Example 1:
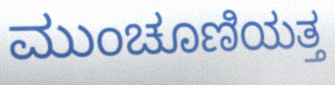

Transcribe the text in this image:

ಮುಂಚೂಣಿಯತ್ತ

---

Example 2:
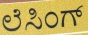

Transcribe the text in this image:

ಲೆಸಿಂಗ್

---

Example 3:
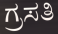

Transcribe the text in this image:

ಗ್ರಸತಿ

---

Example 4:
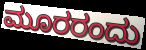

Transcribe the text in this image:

ಮೂರರಂದು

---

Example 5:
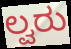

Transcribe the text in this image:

ಲ್ವರು